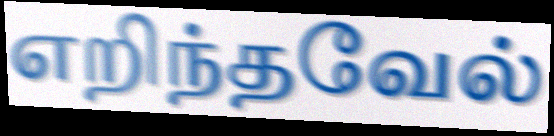
எறிந்தவேல்